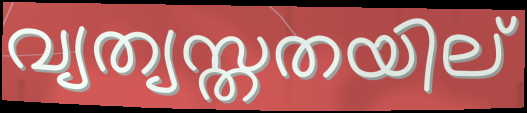
വ്യത്യസ്തതയില്